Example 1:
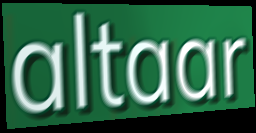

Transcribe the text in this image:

altaar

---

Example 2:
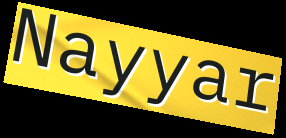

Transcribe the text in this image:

Nayyar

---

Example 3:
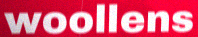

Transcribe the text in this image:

woollens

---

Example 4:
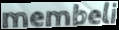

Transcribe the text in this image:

membeli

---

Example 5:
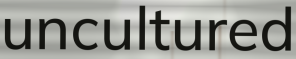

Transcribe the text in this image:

uncultured